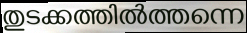
തുടക്കത്തിൽത്തന്നെ